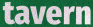
tavern